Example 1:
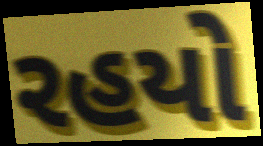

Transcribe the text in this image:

રહયો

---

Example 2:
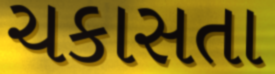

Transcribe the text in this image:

ચકાસતા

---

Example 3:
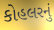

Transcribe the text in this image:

કોહલરનું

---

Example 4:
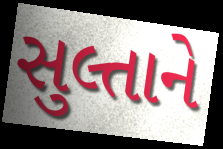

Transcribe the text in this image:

સુલ્તાને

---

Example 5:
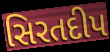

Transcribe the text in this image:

સિરતદીપ